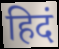
हिदं